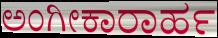
ಅಂಗೀಕಾರಾರ್ಹ